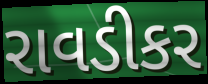
રાવડીકર